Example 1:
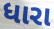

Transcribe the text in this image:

ધારા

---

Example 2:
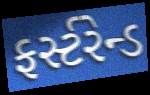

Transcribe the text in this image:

ફર્સ્ટરેન્ડ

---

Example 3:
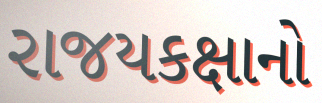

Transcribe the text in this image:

રાજયકક્ષાનો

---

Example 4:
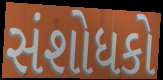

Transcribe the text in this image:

સંશોધકો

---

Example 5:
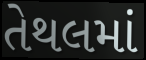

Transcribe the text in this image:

તેથલમાં